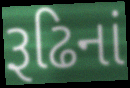
રૂઢિનાં